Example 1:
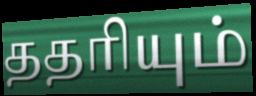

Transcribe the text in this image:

ததரியும்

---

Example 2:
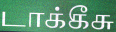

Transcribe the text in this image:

டாக்கீசு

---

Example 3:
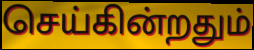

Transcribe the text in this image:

செய்கின்றதும்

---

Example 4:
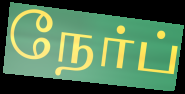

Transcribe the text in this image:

நேர்ப்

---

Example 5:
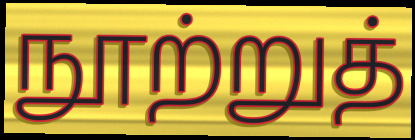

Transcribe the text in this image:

நூற்றுத்